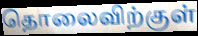
தொலைவிற்குள்